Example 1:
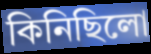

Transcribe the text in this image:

কিনিছিলো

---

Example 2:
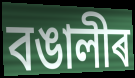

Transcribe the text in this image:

বঙালীৰ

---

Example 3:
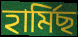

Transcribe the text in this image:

হাৰ্মিছ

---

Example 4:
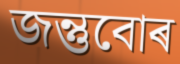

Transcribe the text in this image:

জন্তুবোৰ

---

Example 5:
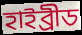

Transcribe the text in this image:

হাইব্ৰীড